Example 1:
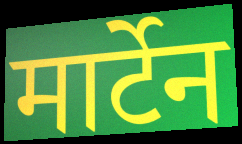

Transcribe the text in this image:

मार्टेन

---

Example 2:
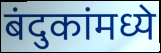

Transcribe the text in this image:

बंदुकांमध्ये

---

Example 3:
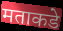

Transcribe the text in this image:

मताकडे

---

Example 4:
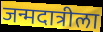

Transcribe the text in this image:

जन्मदात्रीला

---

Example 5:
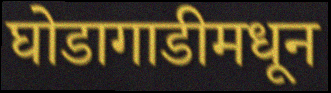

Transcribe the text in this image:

घोडागाडीमधून